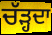
ਚੱੜ੍ਹਦਾ